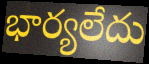
భార్యలేదు